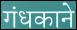
गंधकाने